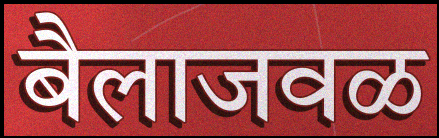
बैलाजवळ